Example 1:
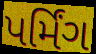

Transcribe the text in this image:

પર્મિંગ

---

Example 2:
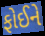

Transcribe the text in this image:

ફોઈને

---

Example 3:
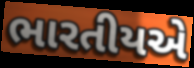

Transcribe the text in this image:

ભારતીયએ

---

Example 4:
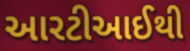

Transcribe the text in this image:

આરટીઆઈથી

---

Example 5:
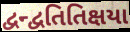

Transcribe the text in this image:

દ્વન્દ્વતિતિક્ષયા